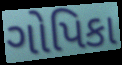
ગોપિકા